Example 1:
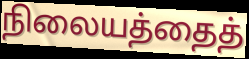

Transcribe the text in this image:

நிலையத்தைத்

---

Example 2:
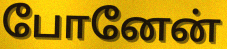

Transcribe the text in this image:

போனேன்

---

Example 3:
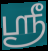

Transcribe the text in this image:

ஸ்ரீ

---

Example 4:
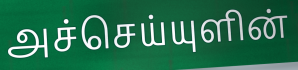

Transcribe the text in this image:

அச்செய்யுளின்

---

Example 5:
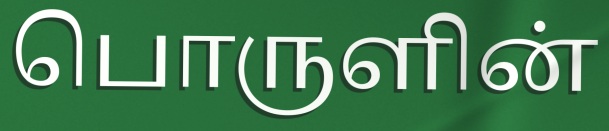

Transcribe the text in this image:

பொருளின்